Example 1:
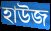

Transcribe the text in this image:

হাউজ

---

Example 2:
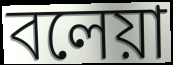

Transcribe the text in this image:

বলেয়া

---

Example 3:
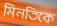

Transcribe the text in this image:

মিনতিকে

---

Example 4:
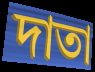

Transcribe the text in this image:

দাতা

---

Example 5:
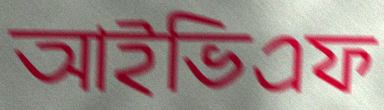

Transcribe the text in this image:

আইভিএফ